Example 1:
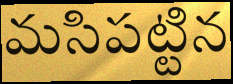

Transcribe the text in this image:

మసిపట్టిన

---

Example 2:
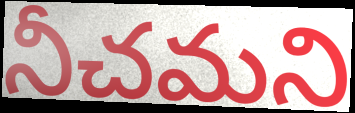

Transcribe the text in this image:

నీచమని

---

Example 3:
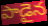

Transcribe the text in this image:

పాడైన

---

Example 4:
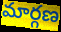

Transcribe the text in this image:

మార్గణ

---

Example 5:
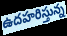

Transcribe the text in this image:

ఉదహరిస్తున్న